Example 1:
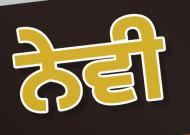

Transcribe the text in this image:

ਨੇਵੀ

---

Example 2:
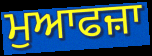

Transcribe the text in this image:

ਮੁਆਫਜ਼ਾ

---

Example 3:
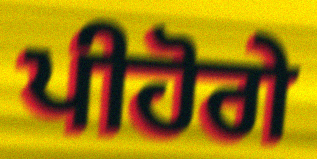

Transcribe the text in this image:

ਪੀਹੋਗੇ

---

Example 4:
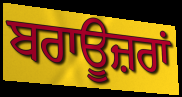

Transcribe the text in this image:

ਬਰਾਊਜ਼ਰਾਂ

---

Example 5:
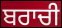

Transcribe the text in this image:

ਬਰਾਚੀ